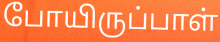
போயிருப்பாள்